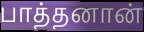
பாத்தனான்